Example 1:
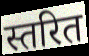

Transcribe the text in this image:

स्तरित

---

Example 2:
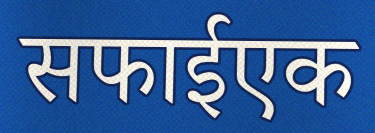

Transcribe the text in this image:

सफाईएक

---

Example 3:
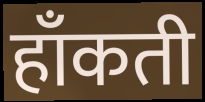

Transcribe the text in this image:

हाँकती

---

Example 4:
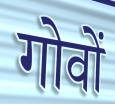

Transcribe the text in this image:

गोवों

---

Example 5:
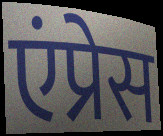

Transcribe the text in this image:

एंप्रेस